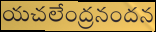
యచలేంద్రనందన